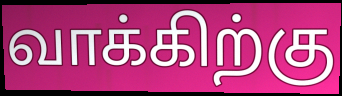
வாக்கிற்கு